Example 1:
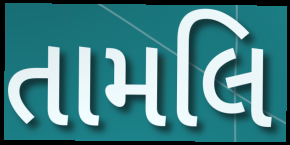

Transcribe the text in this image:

તામલિ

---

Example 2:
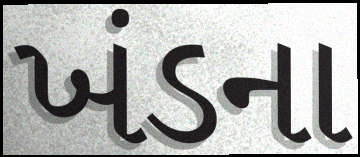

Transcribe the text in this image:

ખંડના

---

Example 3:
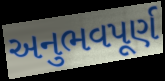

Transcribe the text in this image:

અનુભવપૂર્ણ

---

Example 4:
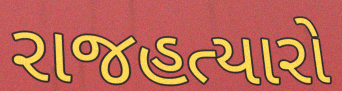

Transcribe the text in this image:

રાજહત્યારો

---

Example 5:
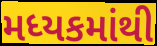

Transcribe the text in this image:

મધ્યકમાંથી